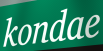
kondae